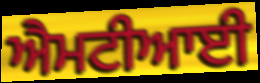
ਐਮਟੀਆਈ